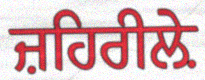
ਜ਼ਹਿਰੀਲ਼ੇ